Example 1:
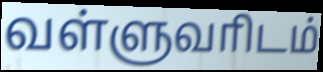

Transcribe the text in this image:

வள்ளுவரிடம்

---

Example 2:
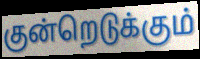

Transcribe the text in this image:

குன்றெடுக்கும்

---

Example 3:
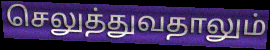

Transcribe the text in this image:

செலுத்துவதாலும்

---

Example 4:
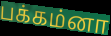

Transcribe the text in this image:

பக்கம்னா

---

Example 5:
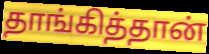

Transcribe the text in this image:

தாங்கித்தான்